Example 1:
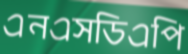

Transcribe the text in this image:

এনএসডিএপি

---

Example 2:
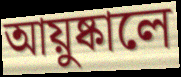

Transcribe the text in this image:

আয়ুষ্কালে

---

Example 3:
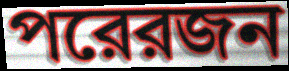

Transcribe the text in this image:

পরেরজন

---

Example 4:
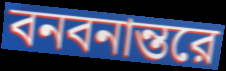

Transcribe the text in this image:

বনবনান্তরে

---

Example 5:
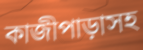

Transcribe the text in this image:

কাজীপাড়াসহ